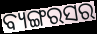
ବ୍ୟଙ୍ଗରସର